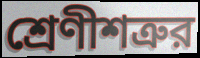
শ্রেণীশত্রুর